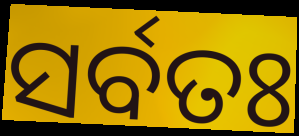
ସର୍ବତଃ